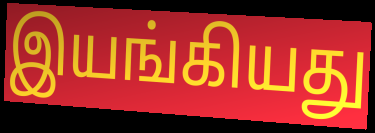
இயங்கியது